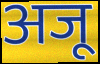
अजू